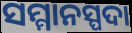
ସମ୍ମାନସ୍ପଦା